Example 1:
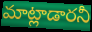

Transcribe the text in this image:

మాట్లాడారనీ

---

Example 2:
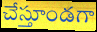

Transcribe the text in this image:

చేస్తూండగా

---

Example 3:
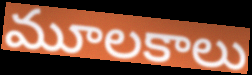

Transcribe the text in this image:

మూలకాలు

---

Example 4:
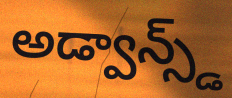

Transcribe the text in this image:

అడ్వాన్స్డ్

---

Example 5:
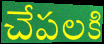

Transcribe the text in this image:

చేపలకి